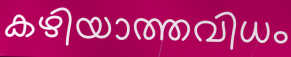
കഴിയാത്തവിധം